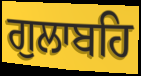
ਗੁਲਾਬਹਿ